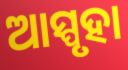
ଆସ୍ପୃହା